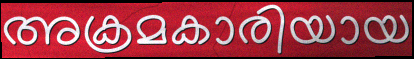
അക്രമകാരിയായ